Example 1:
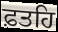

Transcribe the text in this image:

ਫ਼ਤਹਿ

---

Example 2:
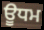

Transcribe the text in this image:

ਊਧਮ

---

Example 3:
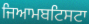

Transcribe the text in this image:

ਜਿਆਮਬਟਿਸਟਾ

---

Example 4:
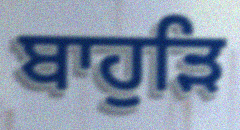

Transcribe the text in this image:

ਬਾਹੁੜਿ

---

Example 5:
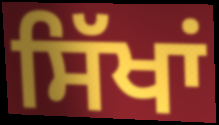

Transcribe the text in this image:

ਸਿੱਖਾਂ